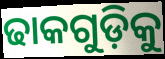
ଢାକଗୁଡ଼ିକୁ